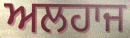
ਅਲਹਾਜ